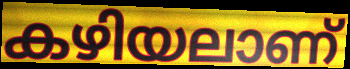
കഴിയലാണ്